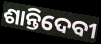
ଶାନ୍ତିଦେବୀ